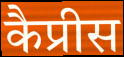
कैप्रीस